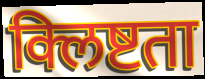
क्‍लिष्टता